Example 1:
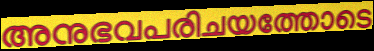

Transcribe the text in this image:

അനുഭവപരിചയത്തോടെ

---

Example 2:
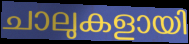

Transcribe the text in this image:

ചാലുകളായി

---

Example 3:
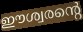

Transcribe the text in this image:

ഈശ്വരന്റെ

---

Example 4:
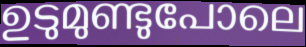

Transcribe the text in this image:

ഉടുമുണ്ടുപോലെ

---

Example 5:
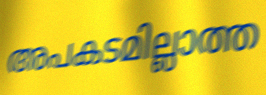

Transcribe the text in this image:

അപകടമില്ലാത്ത